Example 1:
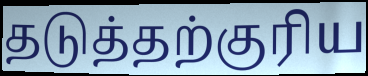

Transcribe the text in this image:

தடுத்தற்குரிய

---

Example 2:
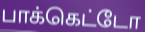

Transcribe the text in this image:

பாக்கெட்டோ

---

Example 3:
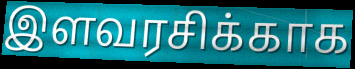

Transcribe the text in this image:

இளவரசிக்காக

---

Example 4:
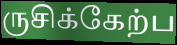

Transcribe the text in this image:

ருசிக்கேற்ப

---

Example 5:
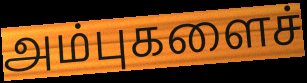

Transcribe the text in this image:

அம்புகளைச்